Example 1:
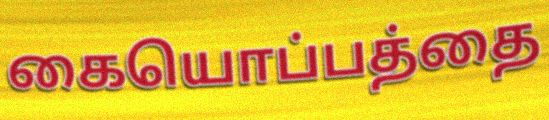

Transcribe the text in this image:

கையொப்பத்தை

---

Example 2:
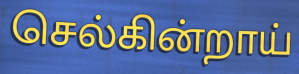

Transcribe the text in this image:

செல்கின்றாய்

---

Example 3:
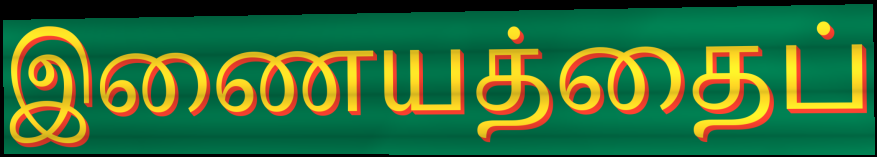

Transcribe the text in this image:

இணையத்தைப்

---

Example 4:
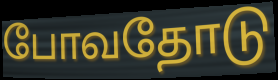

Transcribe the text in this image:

போவதோடு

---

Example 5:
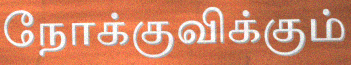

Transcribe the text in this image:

நோக்குவிக்கும்